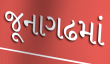
જૂનાગઢમાં